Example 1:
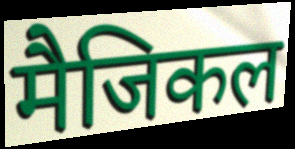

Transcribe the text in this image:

मैजिकल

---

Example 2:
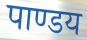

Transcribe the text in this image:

पाण्डय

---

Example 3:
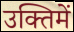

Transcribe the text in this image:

उक्तिमें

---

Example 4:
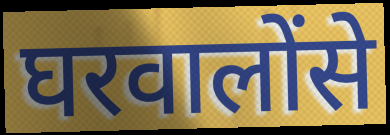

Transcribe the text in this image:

घरवालोंसे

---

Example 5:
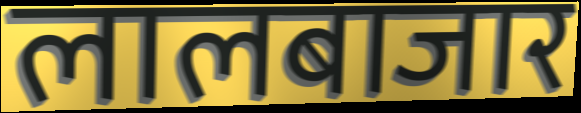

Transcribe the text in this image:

लालबाजार